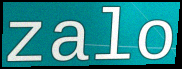
zalo